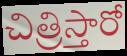
చిత్రిస్తారో